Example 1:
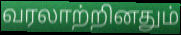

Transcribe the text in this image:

வரலாற்றினதும்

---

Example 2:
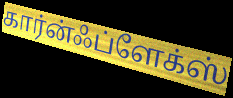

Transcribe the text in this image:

கார்ன்ஃப்ளேக்ஸ்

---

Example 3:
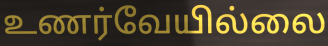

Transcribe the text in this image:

உணர்வேயில்லை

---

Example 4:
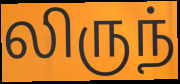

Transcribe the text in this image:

லிருந்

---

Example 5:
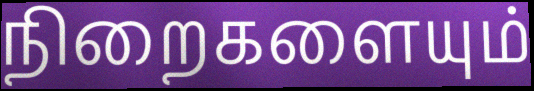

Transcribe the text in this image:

நிறைகளையும்